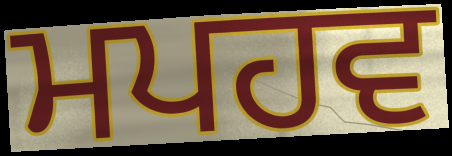
ਮਪਹਵ